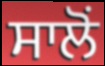
ਸਾਲੋਂ